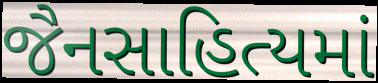
જૈનસાહિત્યમાં